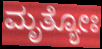
ಮೃತ್ಯೋಃ